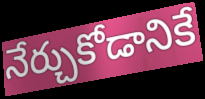
నేర్చుకోడానికే